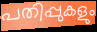
പതിപ്പുകളും